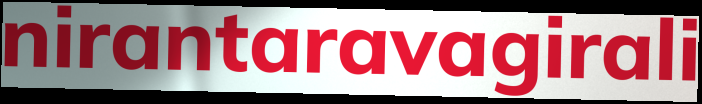
nirantaravagirali